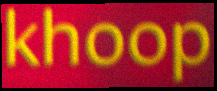
khoop